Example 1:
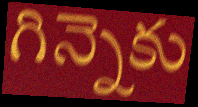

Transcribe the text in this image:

గిన్నెకు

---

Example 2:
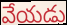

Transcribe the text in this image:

వేయడు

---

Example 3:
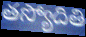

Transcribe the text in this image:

తస్యోదితి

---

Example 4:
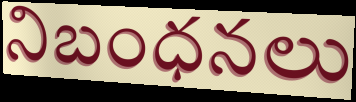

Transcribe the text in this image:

నిబంధనలు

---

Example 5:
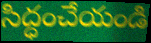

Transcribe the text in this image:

సిద్ధంచేయండి